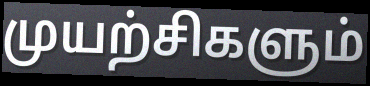
முயற்சிகளும்